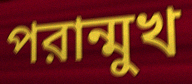
পরান্মুখ